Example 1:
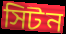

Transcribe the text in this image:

সিটন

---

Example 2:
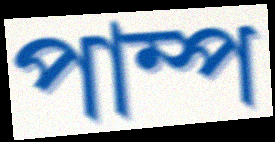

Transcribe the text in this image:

পাম্প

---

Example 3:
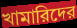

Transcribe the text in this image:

খামারিদের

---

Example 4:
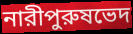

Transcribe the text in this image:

নারীপুরুষভেদ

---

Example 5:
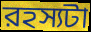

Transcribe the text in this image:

রহস্যটা